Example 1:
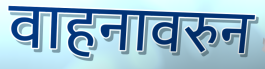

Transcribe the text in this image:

वाहनावरुन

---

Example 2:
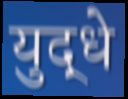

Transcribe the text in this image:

युद्धे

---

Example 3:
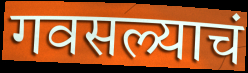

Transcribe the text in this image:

गवसल्याचं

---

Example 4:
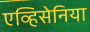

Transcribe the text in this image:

एव्हिसेनिया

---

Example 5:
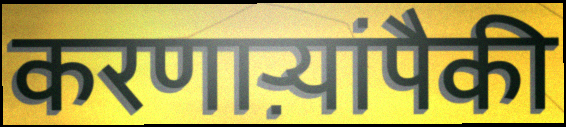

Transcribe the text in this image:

करणाऱ्‍यांपैकी